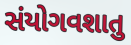
સંયોગવશાતુ